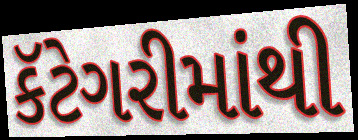
કૅટેગરીમાંથી